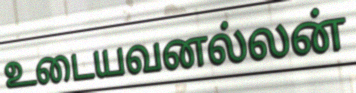
உடையவனல்லன்